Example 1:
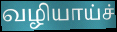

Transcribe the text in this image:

வழியாய்ச்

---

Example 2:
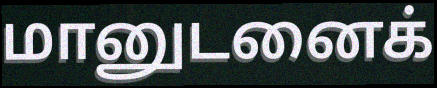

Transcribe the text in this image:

மானுடனைக்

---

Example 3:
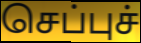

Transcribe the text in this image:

செப்புச்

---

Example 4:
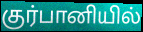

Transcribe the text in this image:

குர்பானியில்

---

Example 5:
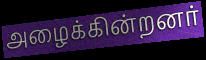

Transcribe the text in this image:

அழைக்கின்றனர்